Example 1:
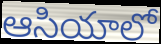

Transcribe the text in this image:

ఆసియాలో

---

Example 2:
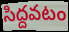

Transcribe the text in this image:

సిద్దవటం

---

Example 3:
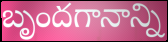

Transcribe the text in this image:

బృందగానాన్ని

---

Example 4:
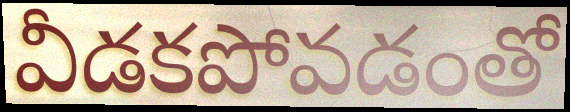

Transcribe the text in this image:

వీడకపోవడంతో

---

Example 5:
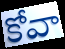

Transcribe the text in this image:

కోవా